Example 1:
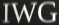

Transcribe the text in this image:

IWG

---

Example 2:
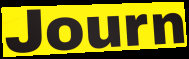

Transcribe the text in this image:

Journ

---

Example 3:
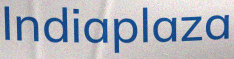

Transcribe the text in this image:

Indiaplaza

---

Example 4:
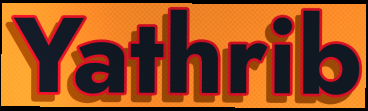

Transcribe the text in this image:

Yathrib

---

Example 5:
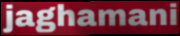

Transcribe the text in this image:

jaghamani